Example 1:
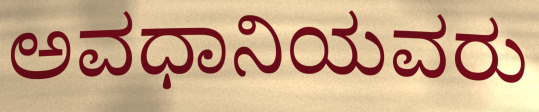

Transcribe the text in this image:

ಅವಧಾನಿಯವರು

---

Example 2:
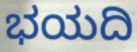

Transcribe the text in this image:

ಭಯದಿ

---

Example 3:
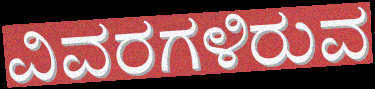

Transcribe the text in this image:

ವಿವರಗಳಿರುವ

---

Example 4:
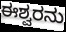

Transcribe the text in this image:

ಈಶ್ವರನು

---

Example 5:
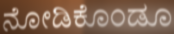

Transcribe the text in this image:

ನೋಡಿಕೊಂಡೂ